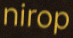
nirop